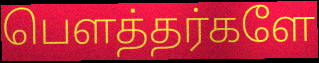
பௌத்தர்களே